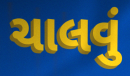
ચાલવું